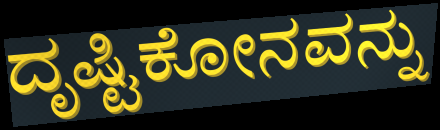
ದೃಷ್ಟಿಕೋನವನ್ನು